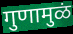
गुणामुळं